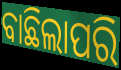
ବାଛିଲାପରି